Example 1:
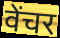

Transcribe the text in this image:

वेंचर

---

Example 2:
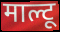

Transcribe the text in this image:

माल्टू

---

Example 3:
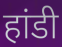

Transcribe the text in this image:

हांडी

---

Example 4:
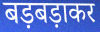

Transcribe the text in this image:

बड़बड़ाकर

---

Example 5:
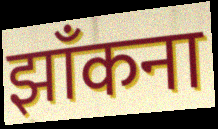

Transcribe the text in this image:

झाँकना